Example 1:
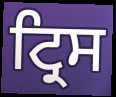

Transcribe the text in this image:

ਟ੍ਰਿਸ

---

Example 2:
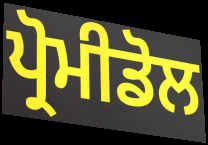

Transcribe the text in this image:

ਪ੍ਰੋਮੀਡੋਲ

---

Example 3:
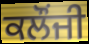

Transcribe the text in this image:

ਕਲੌਂਜੀ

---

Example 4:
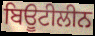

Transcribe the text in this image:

ਬਿਊਟੀਲੀਨ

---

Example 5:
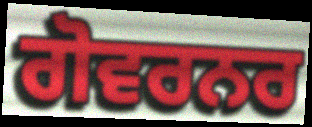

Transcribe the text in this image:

ਗੋਵਰਨਰ